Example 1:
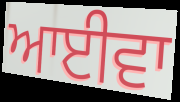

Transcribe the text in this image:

ਆਈਵਾ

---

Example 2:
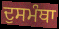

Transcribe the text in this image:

ਦੁਸਮੰਥਾ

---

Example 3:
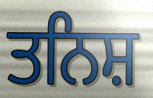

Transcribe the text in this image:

ਤਨਿਸ਼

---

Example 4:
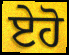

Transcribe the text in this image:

ਏਹੋ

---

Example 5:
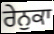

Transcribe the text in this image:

ਰੇਨੁਕਾ